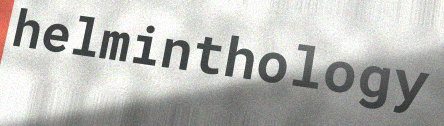
helminthology